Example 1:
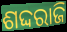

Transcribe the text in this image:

ଶଦ୍ଦରାଜି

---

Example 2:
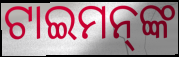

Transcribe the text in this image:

ଟାଇମନ୍‌ଙ୍କ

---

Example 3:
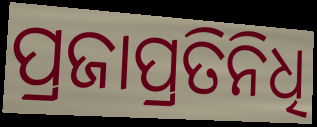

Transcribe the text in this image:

ପ୍ରଜାପ୍ରତିନିଧି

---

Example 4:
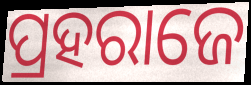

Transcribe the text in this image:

ପ୍ରହରାଜେ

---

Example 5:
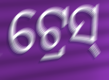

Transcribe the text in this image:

ଟ୍ରେସ୍